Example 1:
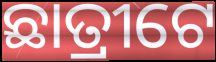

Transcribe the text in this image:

ଛାତ୍ରୀଟେ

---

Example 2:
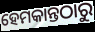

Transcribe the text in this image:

ହେମକାନ୍ତଠାରୁ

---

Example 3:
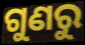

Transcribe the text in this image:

ଗୁଣରୁ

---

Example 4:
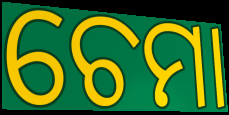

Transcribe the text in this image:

ଚେମା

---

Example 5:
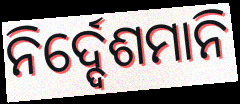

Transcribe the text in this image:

ନିର୍ଦ୍ଦେଶମାନି